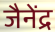
जैनेंद्र